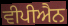
ਵੀਪੀਐਨ